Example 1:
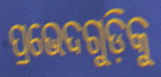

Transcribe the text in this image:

ପ୍ରଭେଦଗୁଡ଼ିକୁ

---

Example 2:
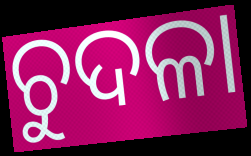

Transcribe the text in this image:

ଚୁଦଳା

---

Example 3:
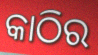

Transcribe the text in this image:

କାଠିର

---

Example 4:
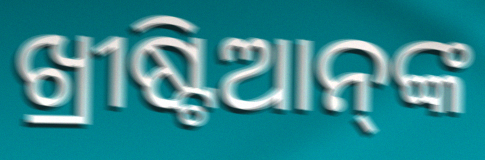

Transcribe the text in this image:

ଖ୍ରୀଷ୍ଟିଆନ୍‌ଙ୍କ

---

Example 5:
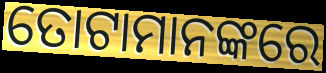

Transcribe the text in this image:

ତୋଟାମାନଙ୍କରେ